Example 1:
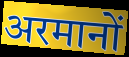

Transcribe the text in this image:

अरमानों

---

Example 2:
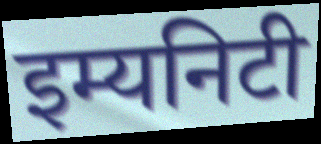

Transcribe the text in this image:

इम्यनिटी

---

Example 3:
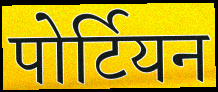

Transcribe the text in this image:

पोर्टियन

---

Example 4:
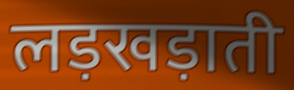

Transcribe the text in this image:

लड़खड़ाती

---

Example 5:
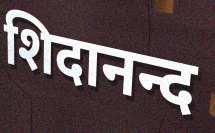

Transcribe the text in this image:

शिदानन्द